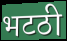
भटठी